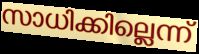
സാധിക്കില്ലെന്ന്